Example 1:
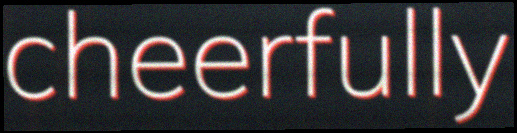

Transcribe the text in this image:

cheerfully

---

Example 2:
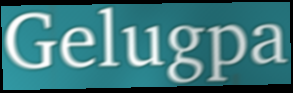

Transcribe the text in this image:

Gelugpa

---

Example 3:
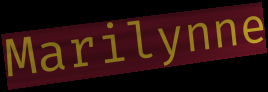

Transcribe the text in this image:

Marilynne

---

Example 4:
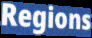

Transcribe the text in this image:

Regions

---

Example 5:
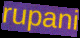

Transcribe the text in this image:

rupani